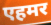
एहमर